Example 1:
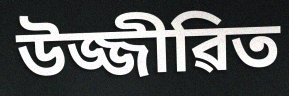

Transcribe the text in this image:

উজ্জীৱিত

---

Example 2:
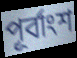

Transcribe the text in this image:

পূৰ্বাংশ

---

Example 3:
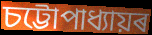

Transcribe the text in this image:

চট্টোপাধ্যায়ৰ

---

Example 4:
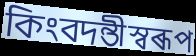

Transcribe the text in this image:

কিংবদন্তীস্বৰূপ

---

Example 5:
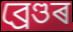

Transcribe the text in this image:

ব্ৰেণ্ডৰ